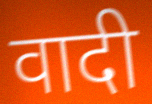
वादी